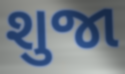
શુજા